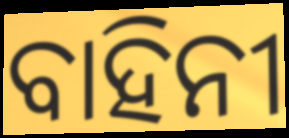
ବାହିନୀ